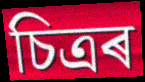
চিত্ৰৰ